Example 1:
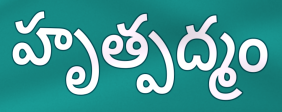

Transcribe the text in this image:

హృత్పద్మం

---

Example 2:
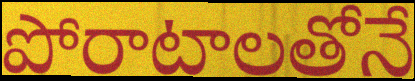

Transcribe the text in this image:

పోరాటాలతోనే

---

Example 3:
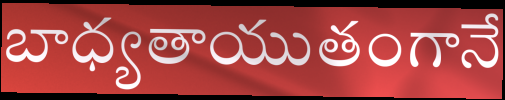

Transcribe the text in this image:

బాధ్యతాయుతంగానే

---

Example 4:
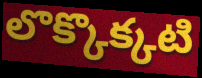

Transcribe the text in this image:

లొక్కొక్కటి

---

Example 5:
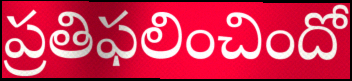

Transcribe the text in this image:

ప్రతిఫలించిందో